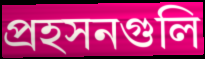
প্রহসনগুলি